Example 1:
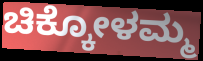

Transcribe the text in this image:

ಚಿಕ್ಕೋಳಮ್ಮ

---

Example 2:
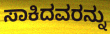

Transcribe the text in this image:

ಸಾಕಿದವರನ್ನು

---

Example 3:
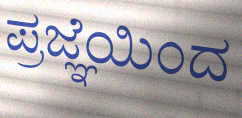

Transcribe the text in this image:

ಪ್ರಜ್ಞೆಯಿಂದ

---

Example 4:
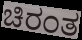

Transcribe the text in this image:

ಚಿರಂತ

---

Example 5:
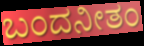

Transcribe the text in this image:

ಬಂದನೀತಂ